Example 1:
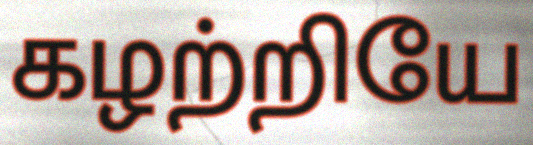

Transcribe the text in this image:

கழற்றியே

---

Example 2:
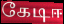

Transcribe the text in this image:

கேடிஈ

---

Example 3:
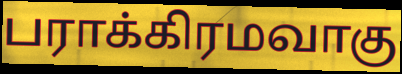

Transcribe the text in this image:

பராக்கிரமவாகு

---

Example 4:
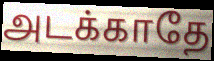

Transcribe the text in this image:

அடக்காதே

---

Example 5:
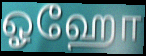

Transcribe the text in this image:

ஓஹோ